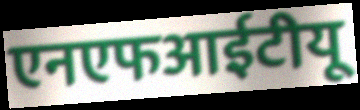
एनएफआईटीयू